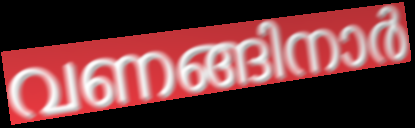
വണങ്ങിനാർ